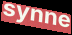
synne